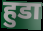
हुडा